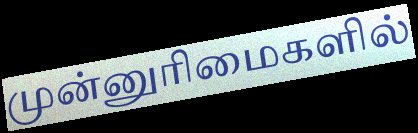
முன்னுரிமைகளில்